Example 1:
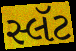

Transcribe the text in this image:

સ્લૅટ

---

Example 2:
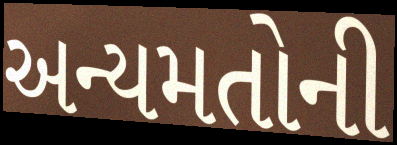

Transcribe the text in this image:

અન્યમતોની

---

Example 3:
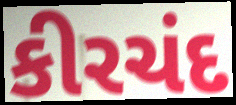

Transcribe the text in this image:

કીરચંદ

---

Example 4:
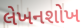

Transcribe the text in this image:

લેખનશોખ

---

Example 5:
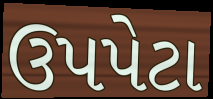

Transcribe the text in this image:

ઉપપેટા